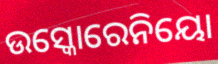
ଉସ୍କୋରେନିୟୋ